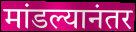
मांडल्यानंतर